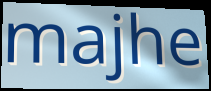
majhe